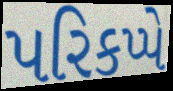
પરિકપ્પે